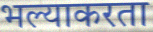
भल्याकरता